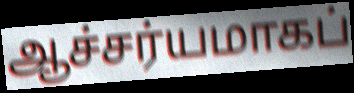
ஆச்சர்யமாகப்